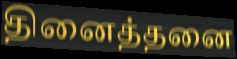
தினைத்தனை